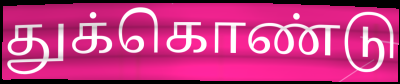
துக்கொண்டு